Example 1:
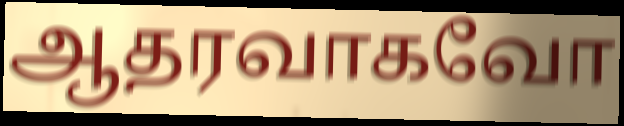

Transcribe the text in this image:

ஆதரவாகவோ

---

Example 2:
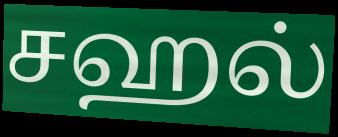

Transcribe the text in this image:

சஹல்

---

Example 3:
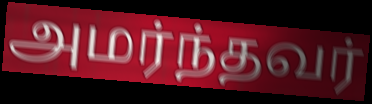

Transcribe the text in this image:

அமர்ந்தவர்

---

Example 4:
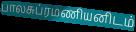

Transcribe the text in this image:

பாலசுப்ரமணியனிடம்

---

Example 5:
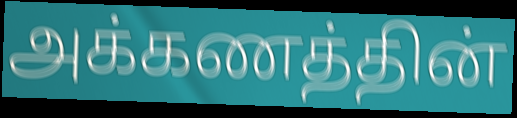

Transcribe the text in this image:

அக்கணத்தின்